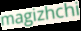
magizhchi